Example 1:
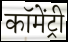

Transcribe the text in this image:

कॉमेंट्री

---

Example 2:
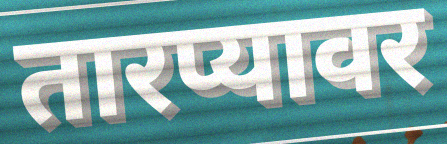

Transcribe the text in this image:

तारप्यावर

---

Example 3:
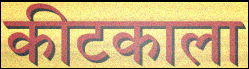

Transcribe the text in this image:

कीटकाला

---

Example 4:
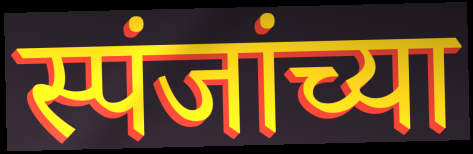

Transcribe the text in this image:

स्पंजांच्या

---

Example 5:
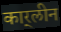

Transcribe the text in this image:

कार्लीन